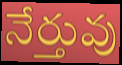
నేర్తువు